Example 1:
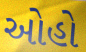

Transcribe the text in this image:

ઓહો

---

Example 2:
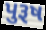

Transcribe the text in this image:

પુરૂષ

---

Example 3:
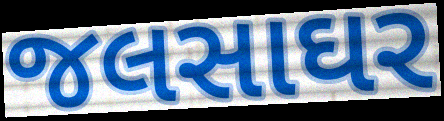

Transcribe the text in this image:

જલસાઘર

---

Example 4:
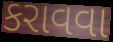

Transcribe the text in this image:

કરાવવા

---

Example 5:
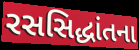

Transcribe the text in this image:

રસસિદ્ધાંતના